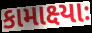
કામાક્ષ્યાઃ